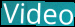
Video